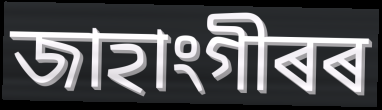
জাহাংগীৰৰ